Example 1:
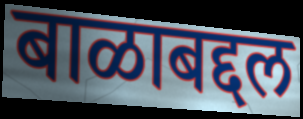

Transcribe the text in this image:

बाळाबद्दल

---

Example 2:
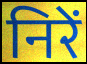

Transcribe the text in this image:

निरें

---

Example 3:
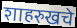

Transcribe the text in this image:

शाहरुखचे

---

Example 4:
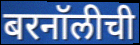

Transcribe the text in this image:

बरनॉलीची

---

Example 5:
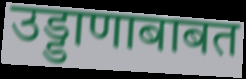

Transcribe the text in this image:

उड्डाणाबाबत